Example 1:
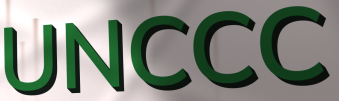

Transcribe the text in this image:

UNCCC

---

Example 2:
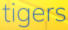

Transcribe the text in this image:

tigers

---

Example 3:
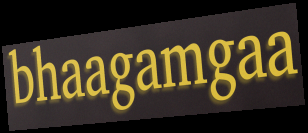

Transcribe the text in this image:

bhaagamgaa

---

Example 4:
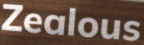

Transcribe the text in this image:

Zealous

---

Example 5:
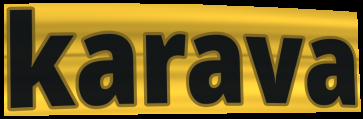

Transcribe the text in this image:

karava